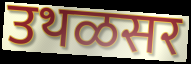
उथळसर